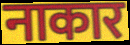
नाकार